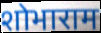
शोभाराम